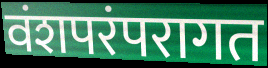
वंशपरंपरागत